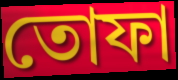
তোফা